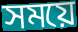
সময়ে